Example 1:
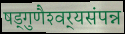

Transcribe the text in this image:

षड्‌गुणैश्वर्यसंपन्न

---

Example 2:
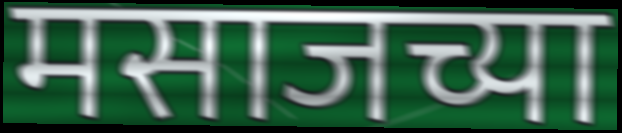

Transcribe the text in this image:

मसाजच्या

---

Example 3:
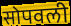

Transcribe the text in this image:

सोपवली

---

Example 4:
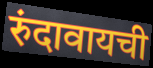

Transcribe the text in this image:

रुंदावायची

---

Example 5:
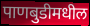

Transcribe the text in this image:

पाणबुडीमधील